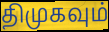
திமுகவும்